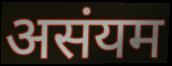
असंयम